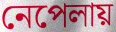
নেপেলায়